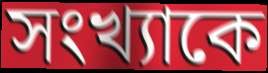
সংখ্যাকে